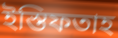
ইস্তিফতাহ